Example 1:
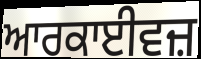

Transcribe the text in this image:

ਆਰਕਾਈਵਜ਼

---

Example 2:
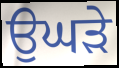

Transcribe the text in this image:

ਉਘੜੇ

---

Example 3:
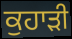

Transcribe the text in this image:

ਕੁਹਾੜੀ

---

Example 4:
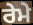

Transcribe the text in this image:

ਰੇਮੇ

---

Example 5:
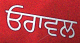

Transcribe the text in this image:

ਓਰਾਵਲ